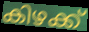
കിഴക്ക്